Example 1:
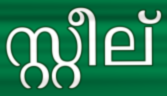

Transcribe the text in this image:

സ്റ്റീല്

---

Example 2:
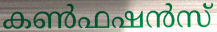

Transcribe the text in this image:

കൺഫഷൻസ്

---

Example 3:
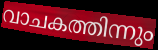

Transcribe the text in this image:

വാചകത്തിന്നും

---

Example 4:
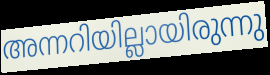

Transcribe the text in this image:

അന്നറിയില്ലായിരുന്നു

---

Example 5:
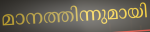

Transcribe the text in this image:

മാനത്തിന്നുമായി